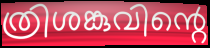
ത്രിശങ്കുവിന്റെ